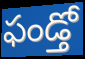
ఫండ్తో